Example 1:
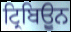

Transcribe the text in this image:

ਟ੍ਰਿਬਿਉੂਨ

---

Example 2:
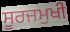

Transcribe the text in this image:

ਸੂਰਜਮੁਖੀ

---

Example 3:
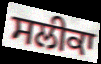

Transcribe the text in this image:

ਸਲੀਕਾ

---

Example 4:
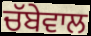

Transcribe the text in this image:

ਚੱਬੇਵਾਲ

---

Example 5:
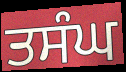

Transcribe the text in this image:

ਤਸੰਘ